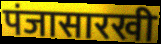
पंजासारखी